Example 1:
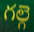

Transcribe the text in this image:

గల్గె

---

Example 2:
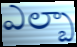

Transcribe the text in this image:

ఎల్బా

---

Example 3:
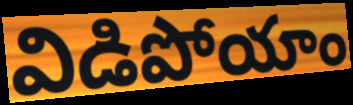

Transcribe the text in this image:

విడిపోయాం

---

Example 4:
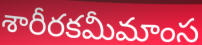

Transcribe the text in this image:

శారీరకమీమాంస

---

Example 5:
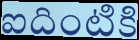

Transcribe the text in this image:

ఐదింటికి